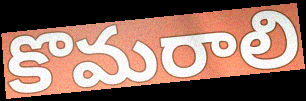
కొమరాలి